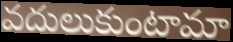
వదులుకుంటామా